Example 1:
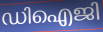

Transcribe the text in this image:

ഡിഐജി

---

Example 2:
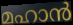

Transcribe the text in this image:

മഹാൻ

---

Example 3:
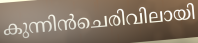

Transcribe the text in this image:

കുന്നിൻചെരിവിലായി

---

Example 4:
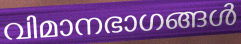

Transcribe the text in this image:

വിമാനഭാഗങ്ങൾ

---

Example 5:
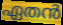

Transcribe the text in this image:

ഏതൻ